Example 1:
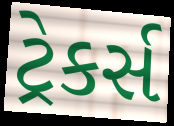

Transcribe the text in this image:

ટ્રેકર્સ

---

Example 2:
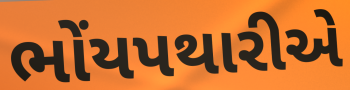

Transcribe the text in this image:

ભોંયપથારીએ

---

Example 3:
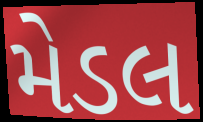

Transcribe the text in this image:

મેડલ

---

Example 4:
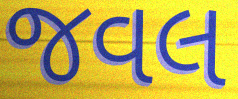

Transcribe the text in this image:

જવલ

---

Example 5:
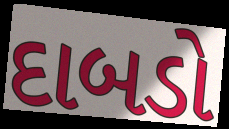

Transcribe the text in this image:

દાબડો